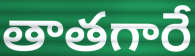
తాతగారే